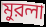
মুরলা